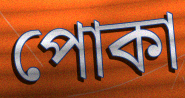
পোকা